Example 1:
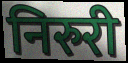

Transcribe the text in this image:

निरुरी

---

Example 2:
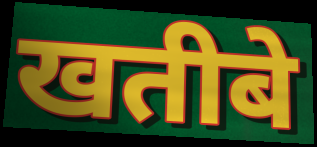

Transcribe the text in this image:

खतीबे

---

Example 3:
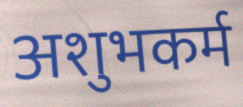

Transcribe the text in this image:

अशुभकर्म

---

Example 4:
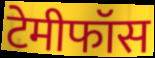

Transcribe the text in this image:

टेमीफॉस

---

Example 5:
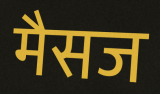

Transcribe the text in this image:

मैसज